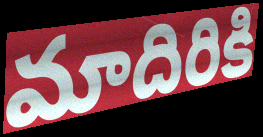
మాదిరికి